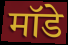
मॉडे